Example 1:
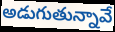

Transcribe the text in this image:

అడుగుతున్నావే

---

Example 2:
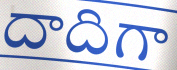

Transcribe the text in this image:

దాదిగా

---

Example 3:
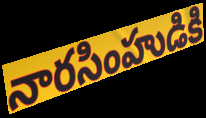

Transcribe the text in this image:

నారసింహుడికి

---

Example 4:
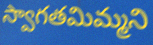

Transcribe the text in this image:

స్వాగతమిమ్మని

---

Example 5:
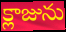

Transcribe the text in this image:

క్లాజును